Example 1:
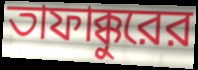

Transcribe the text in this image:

তাফাক্কুরের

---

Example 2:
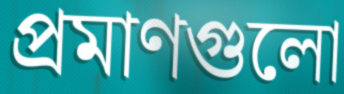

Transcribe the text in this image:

প্রমাণগুলো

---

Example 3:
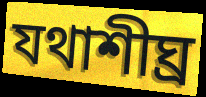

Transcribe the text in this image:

যথাশীঘ্র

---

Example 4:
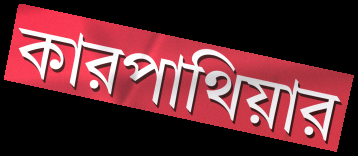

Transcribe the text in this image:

কারপাথিয়ার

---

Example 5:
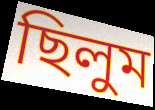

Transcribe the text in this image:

ছিলুম